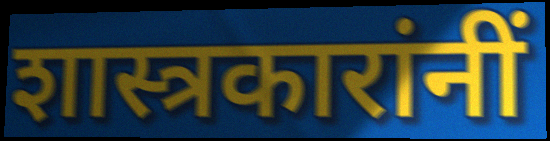
शास्त्रकारांनीं